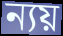
ন্যয়